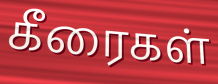
கீரைகள்